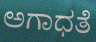
ಅಗಾಧತೆ